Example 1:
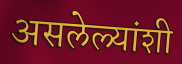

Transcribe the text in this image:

असलेल्यांशी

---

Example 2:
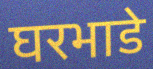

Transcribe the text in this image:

घरभाडे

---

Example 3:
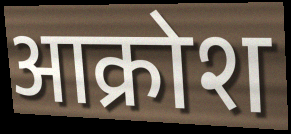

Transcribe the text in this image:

आक्रोश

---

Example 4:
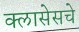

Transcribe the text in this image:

क्लासेसचे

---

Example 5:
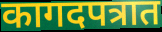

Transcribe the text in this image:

कागदपत्रात